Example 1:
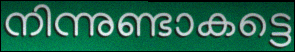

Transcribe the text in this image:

നിന്നുണ്ടാകട്ടെ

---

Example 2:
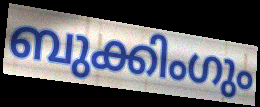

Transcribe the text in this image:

ബുക്കിംഗും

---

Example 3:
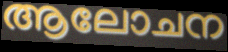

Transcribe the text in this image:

ആലോചന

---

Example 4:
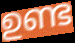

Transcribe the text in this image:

ഉണ്ട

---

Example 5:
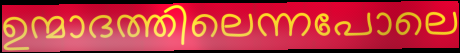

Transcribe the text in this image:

ഉന്മാദത്തിലെന്നപോലെ